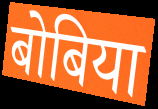
बोबिया